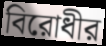
বিরোধীর